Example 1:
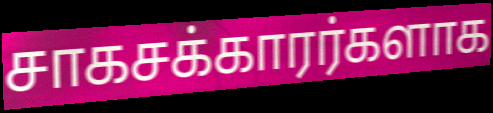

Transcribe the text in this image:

சாகசக்காரர்களாக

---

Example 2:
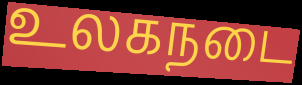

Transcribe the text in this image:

உலகநடை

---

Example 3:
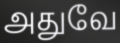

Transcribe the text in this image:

அதுவே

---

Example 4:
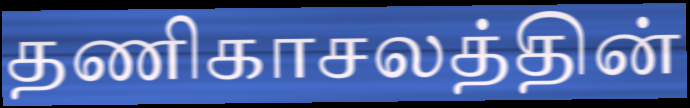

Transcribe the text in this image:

தணிகாசலத்தின்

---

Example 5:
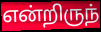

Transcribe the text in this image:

என்றிருந்